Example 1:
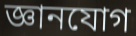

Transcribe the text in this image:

জ্ঞানযোগ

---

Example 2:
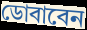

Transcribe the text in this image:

ডোবাবেন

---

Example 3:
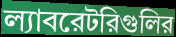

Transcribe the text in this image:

ল্যাবরেটরিগুলির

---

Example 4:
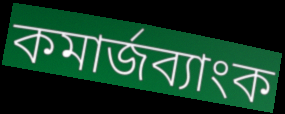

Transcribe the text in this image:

কমার্জব্যাংক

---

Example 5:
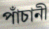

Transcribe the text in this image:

পাঁচানী